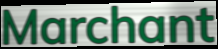
Marchant